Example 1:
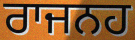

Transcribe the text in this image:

ਰਾਜਨਹ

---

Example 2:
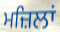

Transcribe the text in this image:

ਮਜ਼ਿਲਾਂ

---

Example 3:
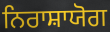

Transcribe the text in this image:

ਨਿਰਾਸ਼ਾਯੋਗ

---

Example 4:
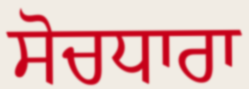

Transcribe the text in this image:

ਸੋਚਧਾਰਾ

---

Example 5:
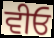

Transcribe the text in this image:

ਵੀਓ